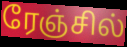
ரேஞ்சில்